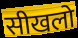
सीखलो